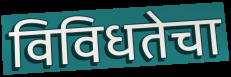
विविधतेचा